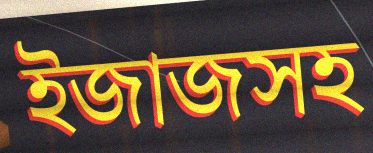
ইজাজসহ